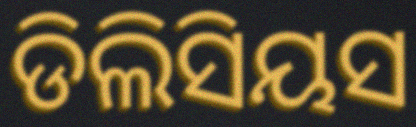
ଡିଲିସିୟସ